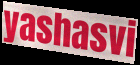
yashasvi